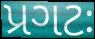
પ્રગટઃ